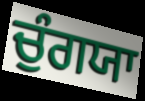
ਚੁੰਗਯਾ